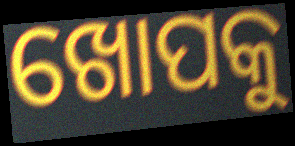
ଖୋପକୁ